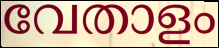
വേതാളം